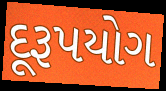
દૂરૂપયોગ